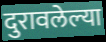
दुरावलेल्या